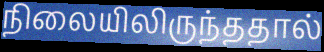
நிலையிலிருந்ததால்